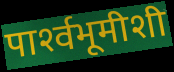
पार्श्वभूमीशी